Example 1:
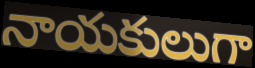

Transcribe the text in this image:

నాయకులుగా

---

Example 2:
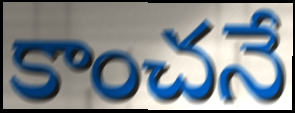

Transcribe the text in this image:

కాంచనే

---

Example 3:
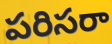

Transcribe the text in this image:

పరిసరా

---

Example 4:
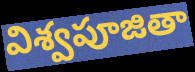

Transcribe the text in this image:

విశ్వపూజితా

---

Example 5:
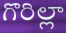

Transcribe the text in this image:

గొరిల్లా